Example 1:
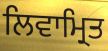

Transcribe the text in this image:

ਲਿਵਾਮ੍ਰਿਤ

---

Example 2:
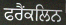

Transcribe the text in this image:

ਫਰੈਂਕਲਿਨ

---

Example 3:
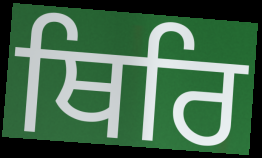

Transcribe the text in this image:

ਥਿਰਿ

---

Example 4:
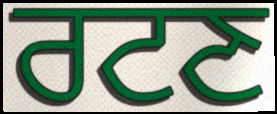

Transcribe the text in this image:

ਰਟਣ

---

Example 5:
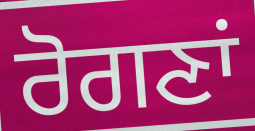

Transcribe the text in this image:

ਰੋਗਣਾਂ